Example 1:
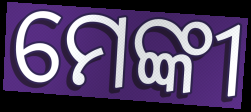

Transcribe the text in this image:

ମେଙ୍କୀ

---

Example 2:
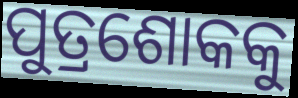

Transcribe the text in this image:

ପୁତ୍ରଶୋକକୁ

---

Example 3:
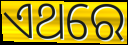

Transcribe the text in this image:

ଏଥରେ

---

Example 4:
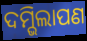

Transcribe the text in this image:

ଦମ୍ଭିଲାପଣ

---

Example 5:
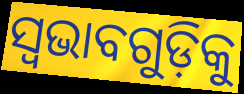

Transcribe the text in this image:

ସ୍ୱଭାବଗୁଡ଼ିକୁ